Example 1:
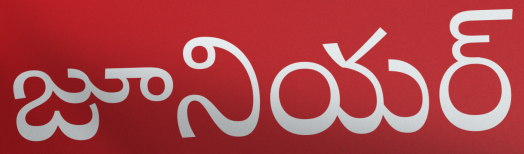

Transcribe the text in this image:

జూనియర్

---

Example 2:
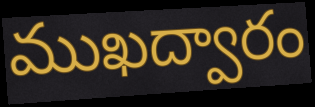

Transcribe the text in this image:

ముఖద్వారం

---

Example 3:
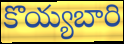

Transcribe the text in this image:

కొయ్యబారి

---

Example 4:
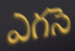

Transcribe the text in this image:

ఎగసె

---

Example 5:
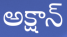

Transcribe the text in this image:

అక్షాన్